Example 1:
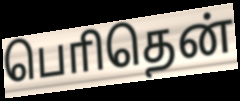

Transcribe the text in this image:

பெரிதென்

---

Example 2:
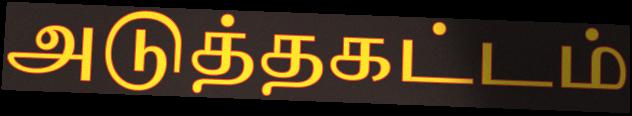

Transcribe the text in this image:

அடுத்தகட்டம்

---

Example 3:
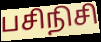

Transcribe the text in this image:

பசிநிசி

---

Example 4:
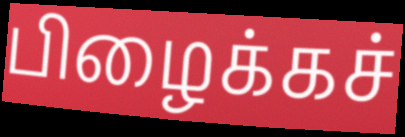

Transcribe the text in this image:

பிழைக்கச்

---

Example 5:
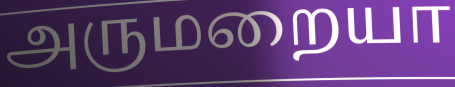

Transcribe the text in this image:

அருமறையா